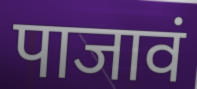
पाजावं